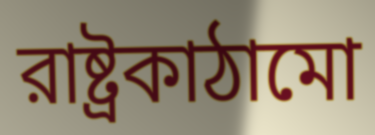
রাষ্ট্রকাঠামো